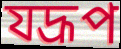
যদ্রূপ